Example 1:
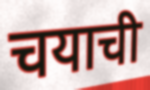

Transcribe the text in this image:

चयाची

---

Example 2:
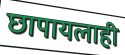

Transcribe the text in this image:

छापायलाही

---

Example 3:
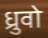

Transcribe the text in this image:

ध्रुवो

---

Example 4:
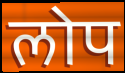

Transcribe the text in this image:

लोप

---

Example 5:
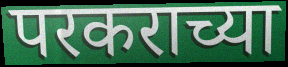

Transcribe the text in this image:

परकराच्या